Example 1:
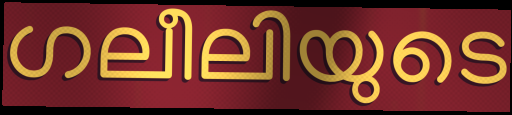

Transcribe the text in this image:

ഗലീലിയുടെ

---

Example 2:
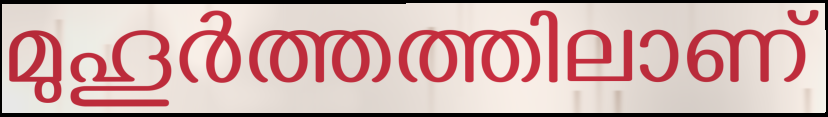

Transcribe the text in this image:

മുഹൂർത്തത്തിലാണ്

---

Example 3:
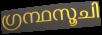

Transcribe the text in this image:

ഗ്രന്ഥസൂചി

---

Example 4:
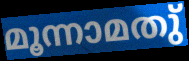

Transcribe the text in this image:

മൂന്നാമതു്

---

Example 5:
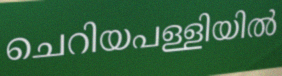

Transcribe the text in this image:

ചെറിയപള്ളിയിൽ